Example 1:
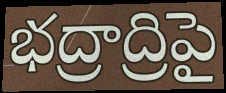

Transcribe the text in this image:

భద్రాద్రిపై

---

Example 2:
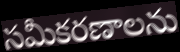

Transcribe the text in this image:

సమీకరణాలను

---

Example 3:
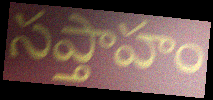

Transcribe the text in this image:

సప్తాహం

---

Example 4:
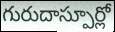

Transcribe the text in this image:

గురుదాస్పూర్లో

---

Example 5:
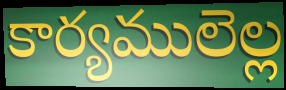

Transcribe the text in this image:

కార్యములెల్ల